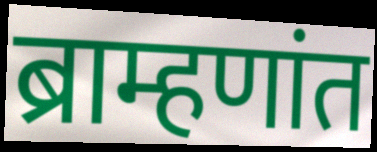
ब्राम्हणांत